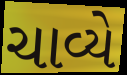
ચાવ્યે